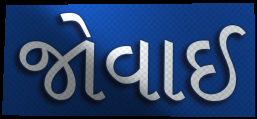
જોવાઈ